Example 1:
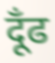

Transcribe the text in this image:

दूँढ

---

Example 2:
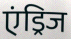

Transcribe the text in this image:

एंड्रिज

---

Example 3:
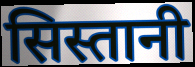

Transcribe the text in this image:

सिस्तानी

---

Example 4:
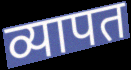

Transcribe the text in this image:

व्यापत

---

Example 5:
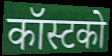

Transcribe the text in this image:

कॉस्टको